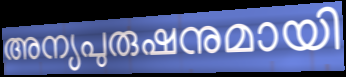
അന്യപുരുഷനുമായി